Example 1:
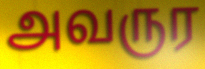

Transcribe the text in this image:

அவருர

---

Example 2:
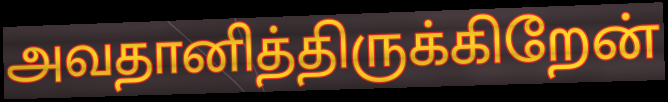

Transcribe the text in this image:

அவதானித்திருக்கிறேன்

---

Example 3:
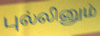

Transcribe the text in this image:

புல்லினும்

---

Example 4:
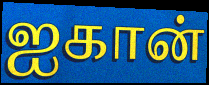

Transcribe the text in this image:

ஐகான்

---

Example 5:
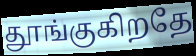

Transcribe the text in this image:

தூங்குகிறதே